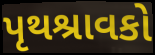
પૃથશ્રાવકો